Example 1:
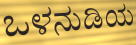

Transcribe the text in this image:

ಒಳನುಡಿಯ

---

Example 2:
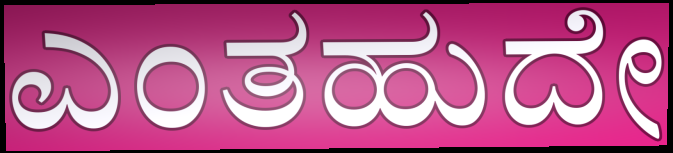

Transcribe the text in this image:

ಎಂತಹುದೇ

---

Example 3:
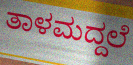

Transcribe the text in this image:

ತಾಳಮದ್ದಲೆ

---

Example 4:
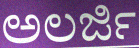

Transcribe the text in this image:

ಅಲರ್ಜಿ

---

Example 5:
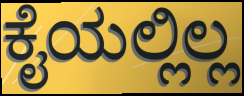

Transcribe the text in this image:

ಕೈಯಲ್ಲಿಲ್ಲ